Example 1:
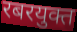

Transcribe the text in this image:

रबरयुक्त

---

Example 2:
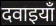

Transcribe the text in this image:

दवाइयाँ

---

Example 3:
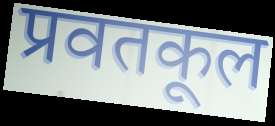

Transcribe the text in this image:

प्रवतकूल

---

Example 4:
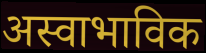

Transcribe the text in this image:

अस्वाभाविक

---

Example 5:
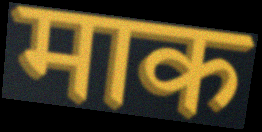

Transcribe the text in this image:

माक